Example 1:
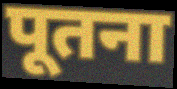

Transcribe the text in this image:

पूतना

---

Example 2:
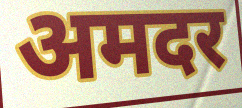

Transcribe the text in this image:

अमदर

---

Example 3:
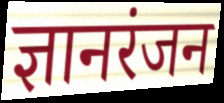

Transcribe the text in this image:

ज्ञानरंजन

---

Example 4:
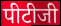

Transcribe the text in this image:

पीटीजी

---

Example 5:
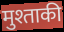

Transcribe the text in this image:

मुश्ताकी